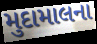
મુદામાલના